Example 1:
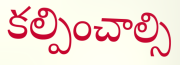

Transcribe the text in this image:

కల్పించాల్సి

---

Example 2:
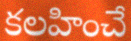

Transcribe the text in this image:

కలహించే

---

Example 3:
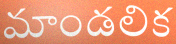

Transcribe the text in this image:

మాండలిక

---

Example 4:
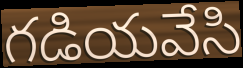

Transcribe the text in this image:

గడియవేసి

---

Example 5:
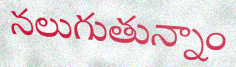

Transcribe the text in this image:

నలుగుతున్నాం